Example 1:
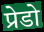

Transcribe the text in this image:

प्रेडो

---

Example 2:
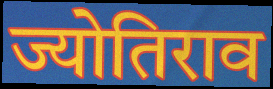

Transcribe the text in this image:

ज्योतिराव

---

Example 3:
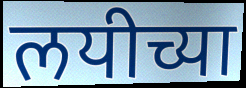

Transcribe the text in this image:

लयीच्या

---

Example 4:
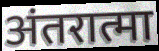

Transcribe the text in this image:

अंतरात्मा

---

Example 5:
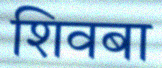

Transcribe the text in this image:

शिवबा